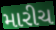
મારીચ